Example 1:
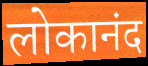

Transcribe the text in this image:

लोकानंद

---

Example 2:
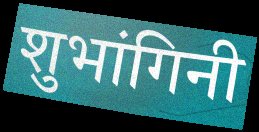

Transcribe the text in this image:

शुभांगिनी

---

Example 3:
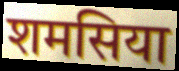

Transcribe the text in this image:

शमसिया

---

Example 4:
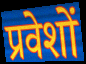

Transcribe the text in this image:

प्रवेशों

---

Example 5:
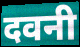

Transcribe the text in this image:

दवनी